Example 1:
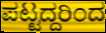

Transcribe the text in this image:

ಪಟ್ಟದ್ದರಿಂದ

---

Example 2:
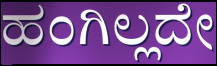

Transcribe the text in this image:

ಹಂಗಿಲ್ಲದೇ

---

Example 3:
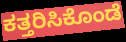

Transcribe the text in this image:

ಕತ್ತರಿಸಿಕೊಂಡೆ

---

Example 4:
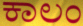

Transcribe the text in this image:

ಕಾಲಂ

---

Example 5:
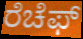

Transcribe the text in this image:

ರೆಚೆಫ್